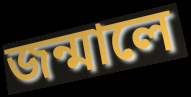
জন্মালে